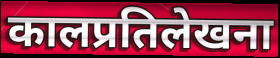
कालप्रतिलेखना